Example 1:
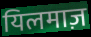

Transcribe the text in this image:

यिलमाज़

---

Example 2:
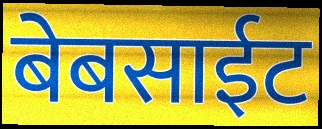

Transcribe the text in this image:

बेबसाईट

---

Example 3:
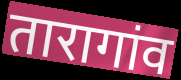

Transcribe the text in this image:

तारागांव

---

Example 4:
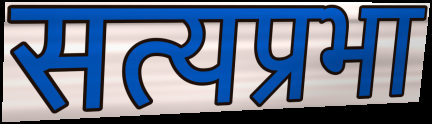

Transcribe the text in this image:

सत्यप्रभा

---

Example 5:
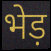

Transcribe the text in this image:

भेड़